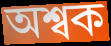
অশ্বক